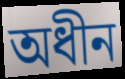
অধীন